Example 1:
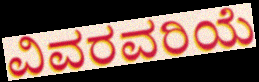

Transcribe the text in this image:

ವಿವರವರಿಯೆ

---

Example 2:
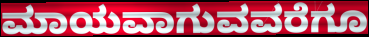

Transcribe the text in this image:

ಮಾಯವಾಗುವವರೆಗೂ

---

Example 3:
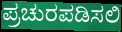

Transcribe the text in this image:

ಪ್ರಚುರಪಡಿಸಲಿ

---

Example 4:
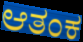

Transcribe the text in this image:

ಆತಂಕ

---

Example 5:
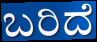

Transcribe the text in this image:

ಬರಿದೆ